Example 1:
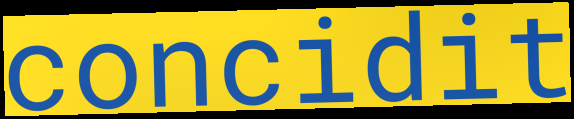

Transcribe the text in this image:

concidit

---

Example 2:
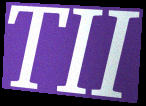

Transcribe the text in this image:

TII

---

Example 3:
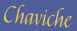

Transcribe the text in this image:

Chaviche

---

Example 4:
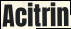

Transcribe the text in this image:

Acitrin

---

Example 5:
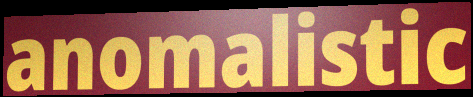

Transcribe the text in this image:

anomalistic